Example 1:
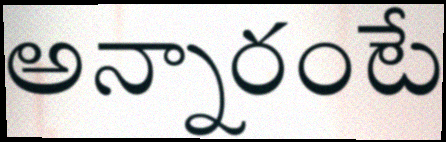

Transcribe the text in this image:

అన్నారంటే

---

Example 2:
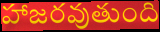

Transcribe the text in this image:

హాజరవుతుంది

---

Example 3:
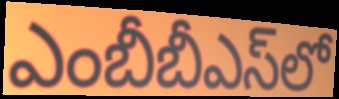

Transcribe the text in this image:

ఎంబీబీఎస్‌లో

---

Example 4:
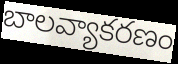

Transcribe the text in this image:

బాలవ్యాకరణం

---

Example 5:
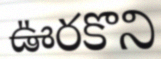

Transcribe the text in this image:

ఊరకొని